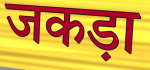
जकड़ा